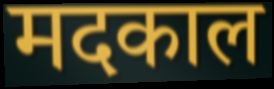
मदकाल